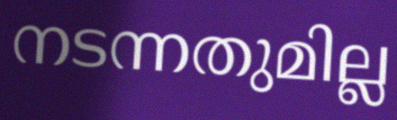
നടന്നതുമില്ല